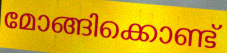
മോങ്ങിക്കൊണ്ട്